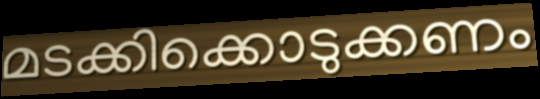
മടക്കിക്കൊടുക്കണം